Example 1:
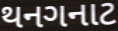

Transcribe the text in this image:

થનગનાટ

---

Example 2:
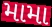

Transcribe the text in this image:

મામા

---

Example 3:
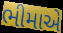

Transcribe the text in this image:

ભીમાએ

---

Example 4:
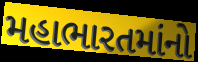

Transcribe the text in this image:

મહાભારતમાંનો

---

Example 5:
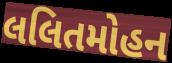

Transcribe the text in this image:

લલિતમોહન